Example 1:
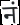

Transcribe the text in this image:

नं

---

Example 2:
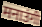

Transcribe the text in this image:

मनाउंगी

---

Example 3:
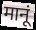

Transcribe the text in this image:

मानूं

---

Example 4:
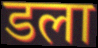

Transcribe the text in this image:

डला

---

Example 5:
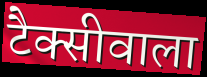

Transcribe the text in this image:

टैक्सीवाला